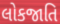
લોકજાતિ